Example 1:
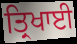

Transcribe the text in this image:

ਤ੍ਰਿਖਾਈ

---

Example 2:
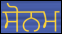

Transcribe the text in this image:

ਸੋਨਮ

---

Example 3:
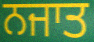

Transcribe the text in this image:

ਨਜਾਤ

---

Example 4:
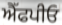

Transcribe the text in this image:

ਐੱਫਪੀਓ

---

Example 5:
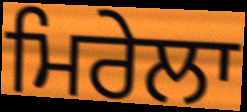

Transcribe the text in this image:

ਮਿਰੇਲਾ